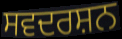
ਸਵਦਰਸ਼ਨ